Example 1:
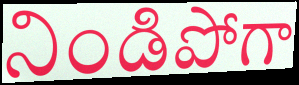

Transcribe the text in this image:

నిండిపోగా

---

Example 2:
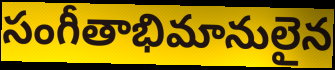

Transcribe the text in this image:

సంగీతాభిమానులైన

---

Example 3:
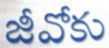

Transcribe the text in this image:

జీవోకు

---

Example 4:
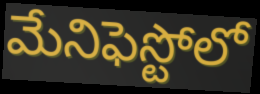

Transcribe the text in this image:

మేనిఫెస్టోలో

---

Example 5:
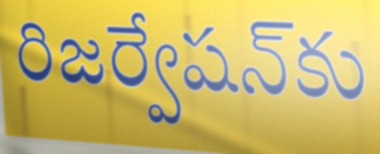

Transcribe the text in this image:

రిజర్వేషన్‌కు